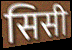
सिसी